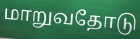
மாறுவதோடு